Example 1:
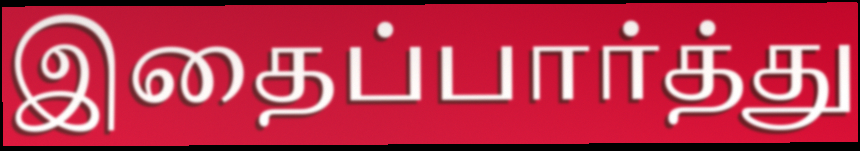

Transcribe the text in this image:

இதைப்பார்த்து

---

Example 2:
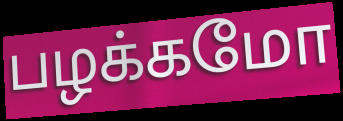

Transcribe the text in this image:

பழக்கமோ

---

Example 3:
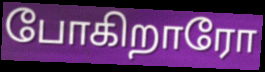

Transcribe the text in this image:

போகிறாரோ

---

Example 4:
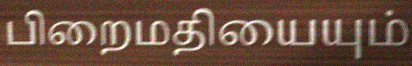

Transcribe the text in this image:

பிறைமதியையும்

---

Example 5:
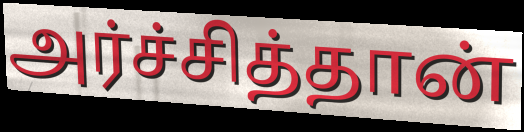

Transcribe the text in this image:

அர்ச்சித்தான்